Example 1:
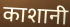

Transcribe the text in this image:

काशानी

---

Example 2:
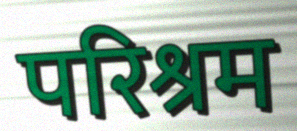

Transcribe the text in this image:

परिश्रम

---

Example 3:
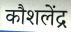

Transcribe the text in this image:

कौशलेंद्र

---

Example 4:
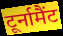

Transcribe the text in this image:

टूर्नामैंट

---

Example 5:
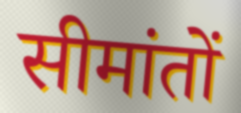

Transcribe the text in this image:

सीमांतों